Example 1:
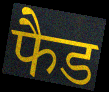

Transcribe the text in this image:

फैड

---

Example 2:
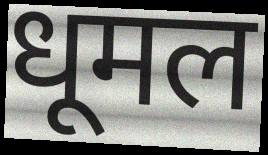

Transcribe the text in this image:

धूमल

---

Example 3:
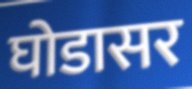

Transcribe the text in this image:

घोडासर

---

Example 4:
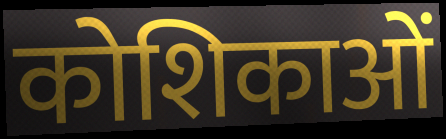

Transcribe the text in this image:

कोशिकाओं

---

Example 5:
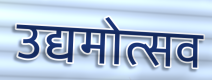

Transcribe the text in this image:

उद्यमोत्सव